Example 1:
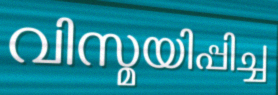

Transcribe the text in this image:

വിസ്മയിപ്പിച്ച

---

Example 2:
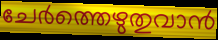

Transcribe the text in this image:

ചേർത്തെഴുതുവാൻ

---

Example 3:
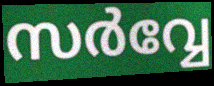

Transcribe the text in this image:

സർവ്വേ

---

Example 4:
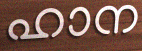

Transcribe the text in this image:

ഹാന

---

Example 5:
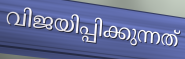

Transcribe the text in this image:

വിജയിപ്പിക്കുന്നത്